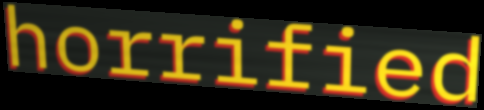
horrified